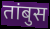
तांबुस